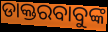
ଡାକ୍ତରବାବୁଙ୍କ